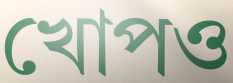
খোপও